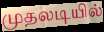
முதலடியில்